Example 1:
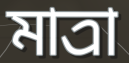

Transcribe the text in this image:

মাত্ৰা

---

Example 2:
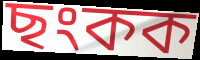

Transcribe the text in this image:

ছংকক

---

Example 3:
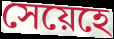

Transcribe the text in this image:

সেয়েহে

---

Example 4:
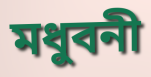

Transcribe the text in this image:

মধুবনী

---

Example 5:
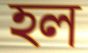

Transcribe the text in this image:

হল